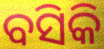
ବସିକି